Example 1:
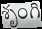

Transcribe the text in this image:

శృంగి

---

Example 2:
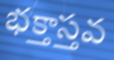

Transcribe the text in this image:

భక్తాస్తవ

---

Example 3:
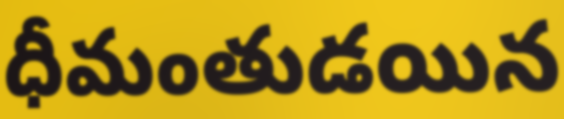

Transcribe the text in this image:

ధీమంతుడయిన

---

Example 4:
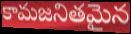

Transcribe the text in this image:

కామజనితమైన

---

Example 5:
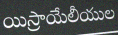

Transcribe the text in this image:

యిస్రాయేలీయుల